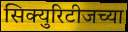
सिक्युरिटीजच्या